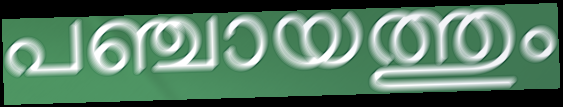
പഞ്ചായത്തും